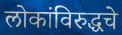
लोकांविरुद्धचे